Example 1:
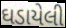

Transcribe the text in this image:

ઘડાયેલી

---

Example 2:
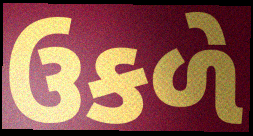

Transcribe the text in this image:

ઉકળે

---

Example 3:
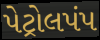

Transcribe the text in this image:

પેટ્રોલપંપ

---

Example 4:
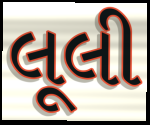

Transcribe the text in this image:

લૂલી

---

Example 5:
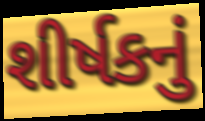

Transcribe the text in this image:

શીર્ષકનું